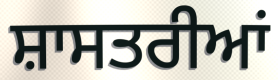
ਸ਼ਾਸਤਰੀਆਂ